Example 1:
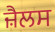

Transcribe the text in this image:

ਜ਼ੈਲਸ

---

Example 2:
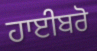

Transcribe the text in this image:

ਹਾਈਬਰੋ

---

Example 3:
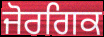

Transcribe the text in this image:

ਜੋਰਗਿਕ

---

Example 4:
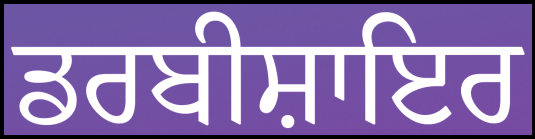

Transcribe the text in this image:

ਡਰਬੀਸ਼ਾਇਰ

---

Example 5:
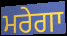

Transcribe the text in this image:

ਮਰੇਗਾ